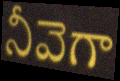
నీవెగా